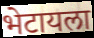
भेटायला